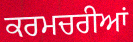
ਕਰਮਚਰੀਆਂ